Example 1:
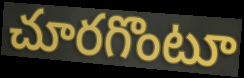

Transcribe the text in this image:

చూరగొంటూ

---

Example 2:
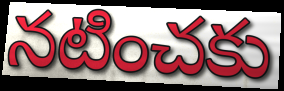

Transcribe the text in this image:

నటించకు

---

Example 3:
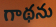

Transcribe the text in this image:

గాథను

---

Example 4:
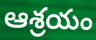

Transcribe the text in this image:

ఆశ్రయం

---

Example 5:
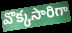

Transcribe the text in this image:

వొక్కసారిగా